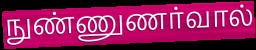
நுண்ணுணர்வால்